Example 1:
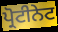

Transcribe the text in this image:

ਪ੍ਰੋਟੀਨੇਟ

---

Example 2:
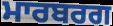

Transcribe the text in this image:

ਮਾਰਬਰਗ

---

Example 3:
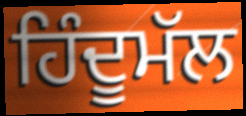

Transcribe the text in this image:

ਹਿੰਦੂਮੱਲ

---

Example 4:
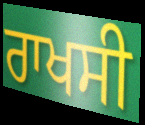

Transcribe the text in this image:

ਰਾਖਸੀ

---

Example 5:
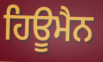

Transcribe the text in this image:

ਹਿਊਮੈਨ